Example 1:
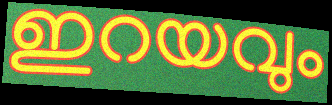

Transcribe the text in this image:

ഇറയവും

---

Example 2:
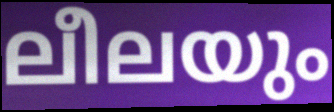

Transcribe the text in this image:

ലീലയും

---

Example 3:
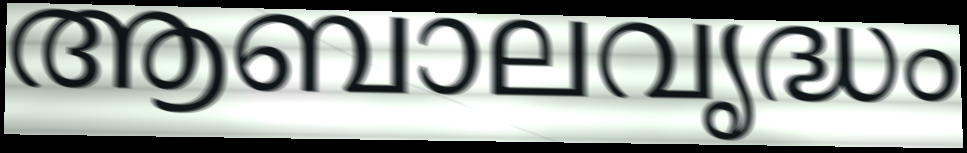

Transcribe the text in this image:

ആബാലവൃദ്ധം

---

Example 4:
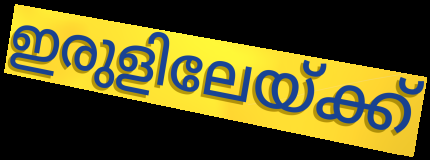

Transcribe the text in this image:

ഇരുളിലേയ്ക്ക്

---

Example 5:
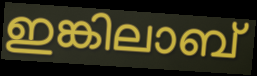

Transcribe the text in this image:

ഇങ്കിലാബ്